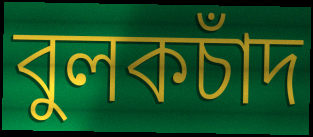
বুলকচাঁদ